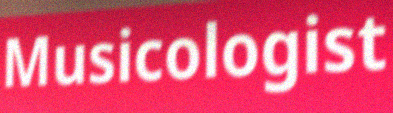
Musicologist